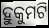
ହୁକୁମଟି